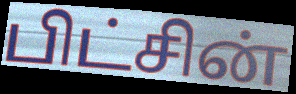
பிட்சின்